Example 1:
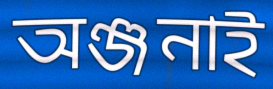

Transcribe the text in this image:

অঞ্জনাই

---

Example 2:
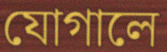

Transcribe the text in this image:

যোগালে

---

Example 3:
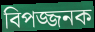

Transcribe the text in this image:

বিপজ্জনক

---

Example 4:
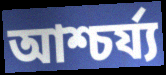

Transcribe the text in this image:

আশ্চৰ্য্য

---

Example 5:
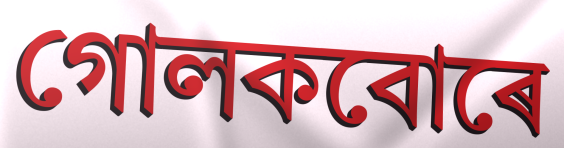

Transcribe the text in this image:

গোলকবোৰে